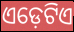
ଏଡ଼େଟିଏ